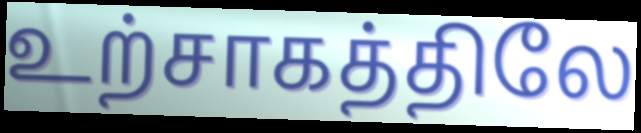
உற்சாகத்திலே